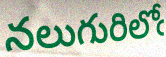
నలుగురిలోఁ